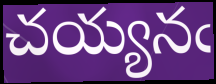
చయ్యనఁ